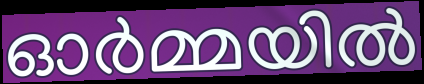
ഓർമ്മയിൽ